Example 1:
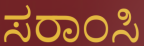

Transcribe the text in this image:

ಸರಾಂಸಿ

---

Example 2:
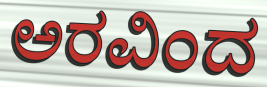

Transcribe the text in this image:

ಅರವಿಂದ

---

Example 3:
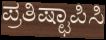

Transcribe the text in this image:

ಪ್ರತಿಷ್ಟಾಪಿಸಿ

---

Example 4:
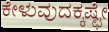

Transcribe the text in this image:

ಕೇಳುವುದಕ್ಕಷ್ಟೇ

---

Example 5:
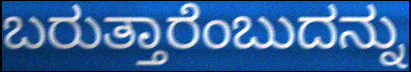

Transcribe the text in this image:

ಬರುತ್ತಾರೆಂಬುದನ್ನು